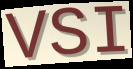
VSI